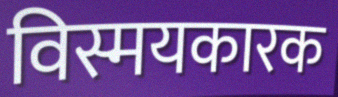
विस्मयकारक